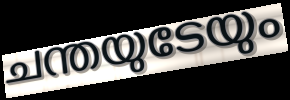
ചന്തയുടേയും